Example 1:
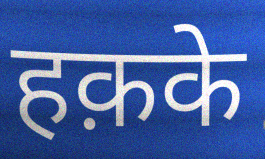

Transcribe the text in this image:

हक़के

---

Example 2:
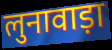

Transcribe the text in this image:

लुनावाड़ा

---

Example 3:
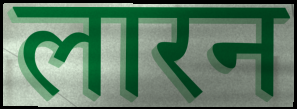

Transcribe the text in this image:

लारन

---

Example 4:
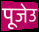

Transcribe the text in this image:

पूजेउ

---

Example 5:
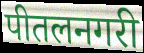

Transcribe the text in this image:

पीतलनगरी